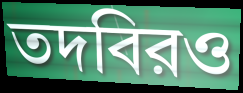
তদবিরও